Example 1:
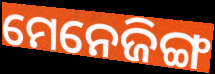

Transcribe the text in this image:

ମେନେଜିଙ୍ଗ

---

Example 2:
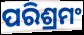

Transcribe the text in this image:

ପରିଶ୍ରମଂ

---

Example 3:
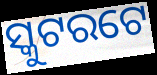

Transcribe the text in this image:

ସ୍କୁଟରଟେ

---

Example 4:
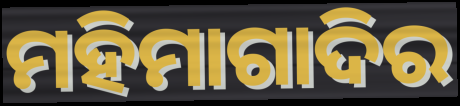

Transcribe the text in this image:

ମହିମାଗାଦିର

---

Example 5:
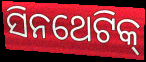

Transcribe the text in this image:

ସିନଥେଟିକ୍